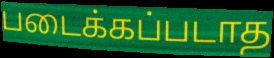
படைக்கப்படாத